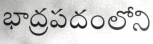
భాద్రపదంలోని